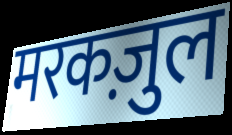
मरकज़ुल